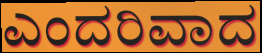
ಎಂದರಿವಾದ